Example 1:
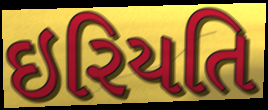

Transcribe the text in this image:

ઇરિયતિ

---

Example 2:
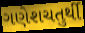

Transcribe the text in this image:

ગણેશચતુર્થી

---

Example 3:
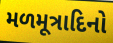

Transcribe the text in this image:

મળમૂત્રાદિનો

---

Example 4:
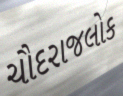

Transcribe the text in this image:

ચૌદરાજલોક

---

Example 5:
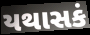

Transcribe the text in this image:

યથાસકં